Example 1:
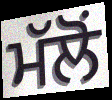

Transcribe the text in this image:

ਮੱਲੋਂ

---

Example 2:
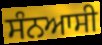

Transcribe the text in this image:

ਸੰਨਆਸੀ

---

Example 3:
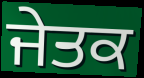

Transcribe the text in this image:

ਜੇਤਕ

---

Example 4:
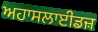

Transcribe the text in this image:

ਅਹਾਸਲਾਈਡਜ਼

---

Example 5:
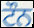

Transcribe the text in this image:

ਟੌਨ